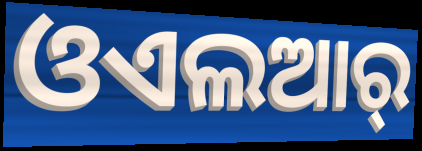
ଓଏଲଆର୍